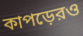
কাপড়েরও